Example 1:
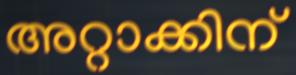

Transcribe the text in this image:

അറ്റാക്കിന്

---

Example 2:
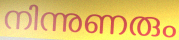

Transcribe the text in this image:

നിന്നുണരും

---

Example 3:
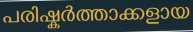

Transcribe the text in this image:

പരിഷ്കർത്താക്കളായ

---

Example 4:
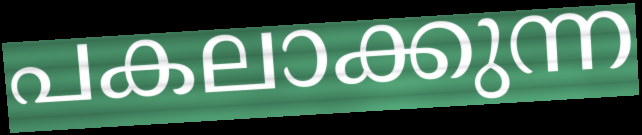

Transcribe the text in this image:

പകലാക്കുന്ന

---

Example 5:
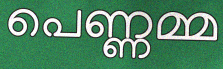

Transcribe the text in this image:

പെണ്ണമ്മ